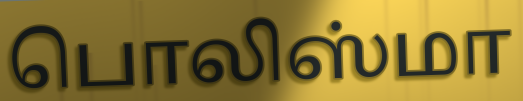
பொலிஸ்மா